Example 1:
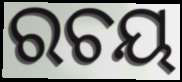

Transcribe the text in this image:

ରଚୟ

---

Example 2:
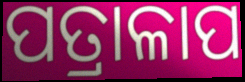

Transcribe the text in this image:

ପତ୍ରାଳାପ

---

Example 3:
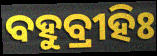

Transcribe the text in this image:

ବହୁବ୍ରୀହିଃ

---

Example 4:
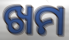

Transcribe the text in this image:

ଖମ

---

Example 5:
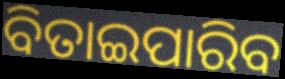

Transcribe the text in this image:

ବିତାଇପାରିବ